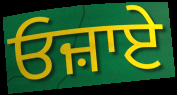
ਓਜ਼ਾਏ